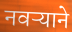
नवऱ्याने